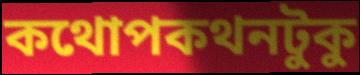
কথোপকথনটুকু